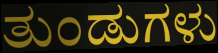
ತುಂಡುಗಳು